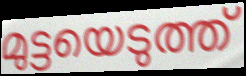
മുട്ടയെടുത്ത്